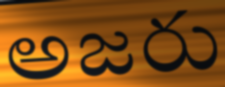
అజరు